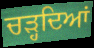
ਚੜ੍ਹਦਿਆਂ